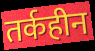
तर्कहीन